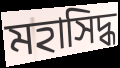
মহাসিদ্ধ